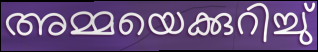
അമ്മയെക്കുറിച്ചു്